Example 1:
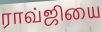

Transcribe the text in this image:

ராவ்ஜியை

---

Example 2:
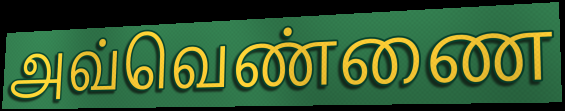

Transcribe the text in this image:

அவ்வெண்ணை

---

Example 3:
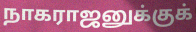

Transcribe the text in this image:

நாகராஜனுக்குக்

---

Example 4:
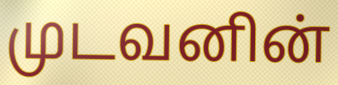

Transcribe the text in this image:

முடவனின்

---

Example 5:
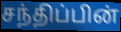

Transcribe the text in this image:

சந்திப்பின்